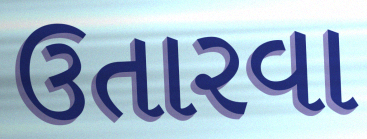
ઉતારવા